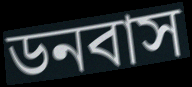
ডনবাস